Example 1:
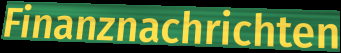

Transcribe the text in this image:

Finanznachrichten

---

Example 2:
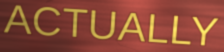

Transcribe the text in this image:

ACTUALLY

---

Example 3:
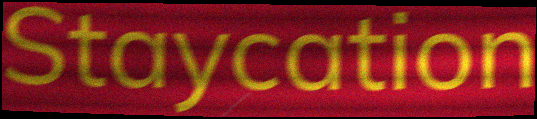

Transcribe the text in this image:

Staycation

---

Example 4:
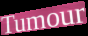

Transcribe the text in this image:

Tumour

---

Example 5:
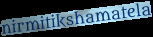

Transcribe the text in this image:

nirmitikshamatela